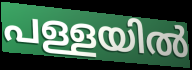
പള്ളയിൽ